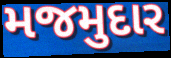
મજમુદાર